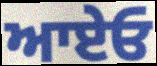
ਆਏਓ